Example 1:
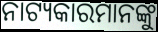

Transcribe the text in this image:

ନାଟ୍ଯକାରମାନଙ୍କୁ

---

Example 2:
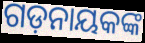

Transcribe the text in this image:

ଗଡ଼ନାୟକଙ୍କ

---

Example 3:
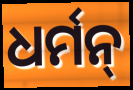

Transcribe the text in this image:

ଧର୍ମନ୍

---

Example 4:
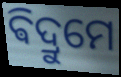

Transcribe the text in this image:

ଵିଦ୍ରୁମେ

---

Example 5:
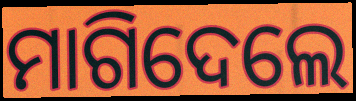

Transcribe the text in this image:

ମାଗିଦେଲେ